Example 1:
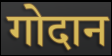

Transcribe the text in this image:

गोदान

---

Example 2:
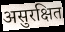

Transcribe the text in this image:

असुरक्षित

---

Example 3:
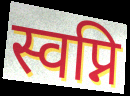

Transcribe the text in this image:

स्वप्नि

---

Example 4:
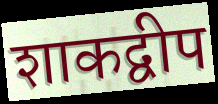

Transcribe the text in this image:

शाकद्वीप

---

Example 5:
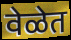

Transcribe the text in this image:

वेळेत